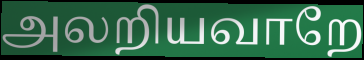
அலறியவாறே